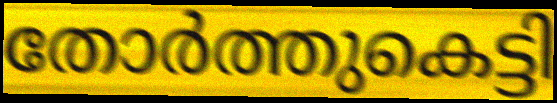
തോർത്തുകെട്ടി